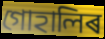
গোহালিৰ